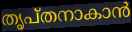
തൃപ്തനാകാൻ